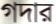
গদার